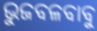
ଭୁଜବଳବାବୁ